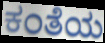
ಕಂತೆಯ